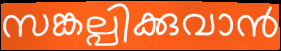
സങ്കല്പിക്കുവാൻ